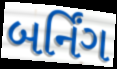
બર્નિંગ